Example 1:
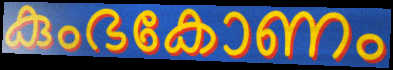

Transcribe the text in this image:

കുംഭകോണം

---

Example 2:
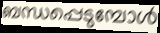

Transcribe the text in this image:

ബന്ധപ്പെടുമ്പോൾ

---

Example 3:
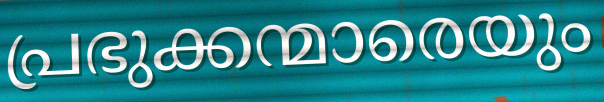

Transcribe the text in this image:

പ്രഭുക്കന്മാരെയും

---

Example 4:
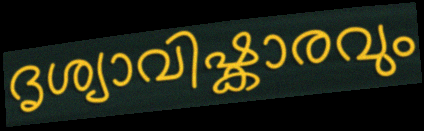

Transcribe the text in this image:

ദൃശ്യാവിഷ്കാരവും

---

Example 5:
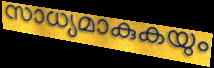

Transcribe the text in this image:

സാധ്യമാകുകയും